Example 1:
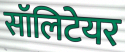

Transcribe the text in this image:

सॉलिटेयर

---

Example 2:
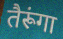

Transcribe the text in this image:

तैरूंगा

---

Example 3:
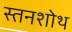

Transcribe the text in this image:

स्तनशोथ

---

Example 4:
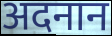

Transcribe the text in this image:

अदनान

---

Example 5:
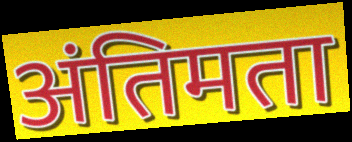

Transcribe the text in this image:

अंतिमता